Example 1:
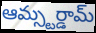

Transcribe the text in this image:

ఆమ్స్టర్డామ్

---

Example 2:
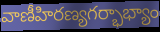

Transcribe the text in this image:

వాణీహిరణ్యగర్భాభ్యాం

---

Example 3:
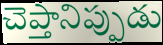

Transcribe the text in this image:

చెప్తానిప్పుడు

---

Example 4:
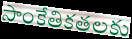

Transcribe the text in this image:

సాంకేతికతలకు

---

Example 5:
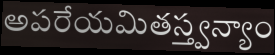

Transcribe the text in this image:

అపరేయమితస్త్వన్యాం